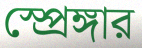
স্প্রেঙ্গার